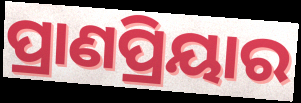
ପ୍ରାଣପ୍ରିୟାର